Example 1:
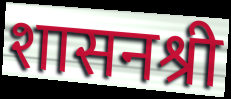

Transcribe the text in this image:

शासनश्री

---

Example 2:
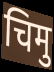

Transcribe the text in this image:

चिमु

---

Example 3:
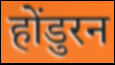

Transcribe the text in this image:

होंडुरन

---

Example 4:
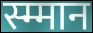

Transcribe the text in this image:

स्म्मान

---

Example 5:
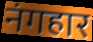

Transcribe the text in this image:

नंगहार